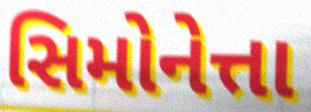
સિમોનેત્તા